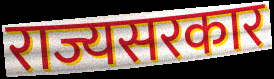
राज्यसरकार